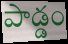
పాడ్డం